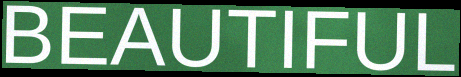
BEAUTIFUL